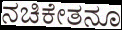
ನಚಿಕೇತನೂ